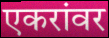
एकरांवर